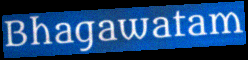
Bhagawatam